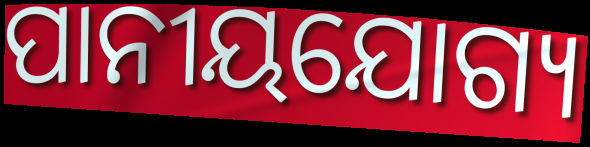
ପାନୀୟଯୋଗ୍ୟ